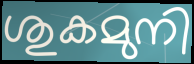
ശുകമുനി